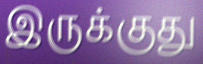
இருக்குது